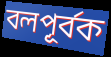
বলপূৰ্বক